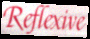
Reflexive